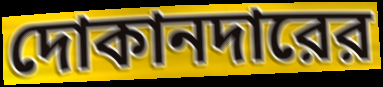
দোকানদারের